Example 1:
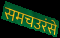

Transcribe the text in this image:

समचउरंसे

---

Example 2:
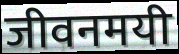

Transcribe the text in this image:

जीवनमयी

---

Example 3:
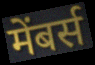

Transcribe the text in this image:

मेंबर्स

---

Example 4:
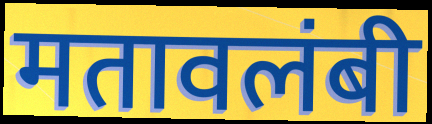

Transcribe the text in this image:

मतावलंबी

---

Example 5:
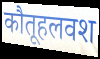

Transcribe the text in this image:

कौतूहलवश